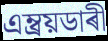
এম্ব্ৰয়ডাৰী